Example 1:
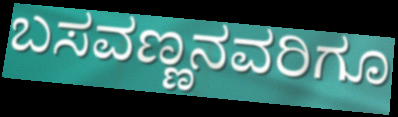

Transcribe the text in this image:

ಬಸವಣ್ಣನವರಿಗೂ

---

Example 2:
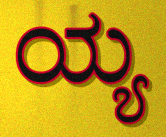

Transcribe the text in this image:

ಯ್ಯ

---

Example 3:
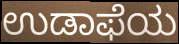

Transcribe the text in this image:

ಉಡಾಫೆಯ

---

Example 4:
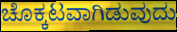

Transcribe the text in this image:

ಚೊಕ್ಕಟವಾಗಿಡುವುದು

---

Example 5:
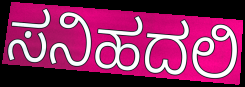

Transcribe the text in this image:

ಸನಿಹದಲಿ